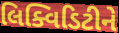
લિક્વિડિટીને